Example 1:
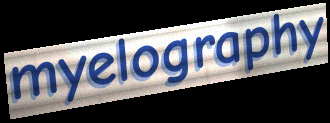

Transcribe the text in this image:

myelography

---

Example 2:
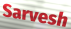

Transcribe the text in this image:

Sarvesh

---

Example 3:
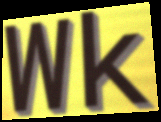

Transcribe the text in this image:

Wk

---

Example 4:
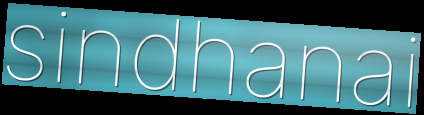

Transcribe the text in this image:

sindhanai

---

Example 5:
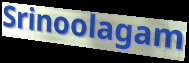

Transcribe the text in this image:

Srinoolagam